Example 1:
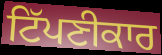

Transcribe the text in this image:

ਟਿੱਪਣੀਕਾਰ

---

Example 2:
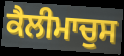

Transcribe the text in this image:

ਕੈਲੀਮਾਚੁਸ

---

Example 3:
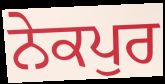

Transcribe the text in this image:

ਨੇਕਪੁਰ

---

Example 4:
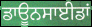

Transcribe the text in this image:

ਡਾਊਨਸਾਈਡਾਂ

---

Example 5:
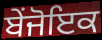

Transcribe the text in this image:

ਬੇਂਜੋਇਕ